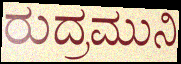
ರುದ್ರಮುನಿ